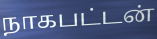
நாகபட்டன்